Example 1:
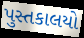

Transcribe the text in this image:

પુસ્તકાલયો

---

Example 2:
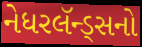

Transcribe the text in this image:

નેધરલૅન્ડ્સનો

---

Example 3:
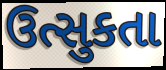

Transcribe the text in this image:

ઉત્સુકતા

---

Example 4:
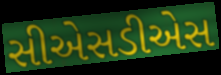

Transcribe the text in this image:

સીએસડીએસ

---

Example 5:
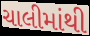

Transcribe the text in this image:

ચાલીમાંથી